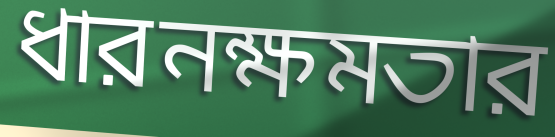
ধারনক্ষমতার